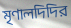
মৃণালদিদির